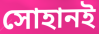
সোহানই